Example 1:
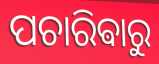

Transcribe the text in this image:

ପଚାରିଵାରୁ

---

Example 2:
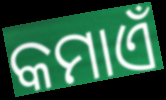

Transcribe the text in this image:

କମାଏଁ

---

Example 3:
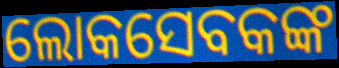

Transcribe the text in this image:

ଲୋକସେବକଙ୍କ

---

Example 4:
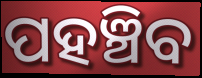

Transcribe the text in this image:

ପହଞ୍ଚିବ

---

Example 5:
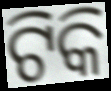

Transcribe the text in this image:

ଟିକି